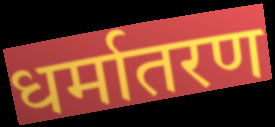
धर्मातरण